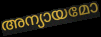
അന്യായമോ